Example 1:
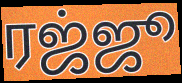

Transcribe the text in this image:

ரஜ்ஜூ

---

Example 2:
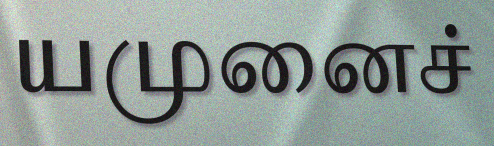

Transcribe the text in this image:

யமுனைச்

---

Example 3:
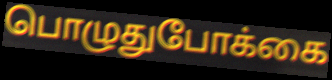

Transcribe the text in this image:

பொழுதுபோக்கை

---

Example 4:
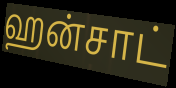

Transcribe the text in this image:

ஹன்சாட்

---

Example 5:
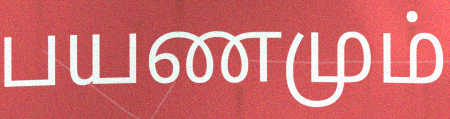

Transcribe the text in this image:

பயணமும்